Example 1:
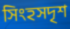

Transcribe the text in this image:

সিংহসদৃশ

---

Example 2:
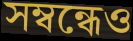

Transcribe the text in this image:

সম্বন্ধেও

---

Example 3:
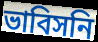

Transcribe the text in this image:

ভাবিসনি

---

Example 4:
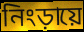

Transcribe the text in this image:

নিংড়ায়ে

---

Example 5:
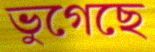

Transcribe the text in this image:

ভুগেছে